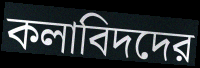
কলাবিদদের